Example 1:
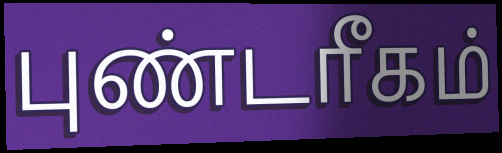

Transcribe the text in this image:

புண்டரீகம்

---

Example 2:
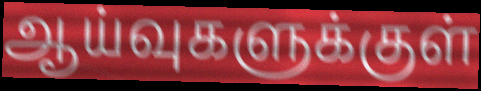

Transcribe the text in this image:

ஆய்வுகளுக்குள்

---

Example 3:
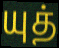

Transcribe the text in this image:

யுத்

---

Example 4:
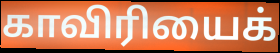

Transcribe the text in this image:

காவிரியைக்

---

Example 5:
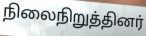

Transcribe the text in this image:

நிலைநிறுத்தினர்